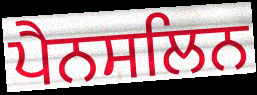
ਪੈਨਸਲਿਨ